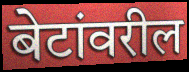
बेटांवरील